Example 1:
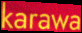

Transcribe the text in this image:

karawa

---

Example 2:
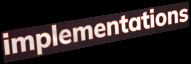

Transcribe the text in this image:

implementations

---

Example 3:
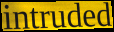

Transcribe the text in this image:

intruded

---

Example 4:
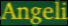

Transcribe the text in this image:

Angeli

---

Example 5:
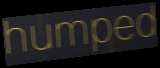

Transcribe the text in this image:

humped